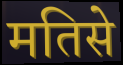
मतिसे